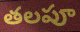
తలపూ